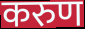
करुण